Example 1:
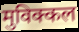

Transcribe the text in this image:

मुविक्कल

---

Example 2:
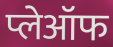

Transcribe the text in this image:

प्‍लेऑफ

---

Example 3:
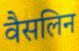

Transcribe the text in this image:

वैसलिन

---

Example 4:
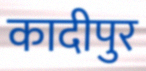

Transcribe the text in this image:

कादीपुर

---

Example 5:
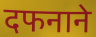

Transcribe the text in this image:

दफनाने